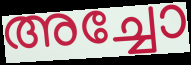
അച്ചോ